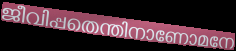
ജീവിപ്പതെന്തിനാണോമനേ